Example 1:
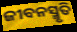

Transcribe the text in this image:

ଜୀବନସ୍ମୃତି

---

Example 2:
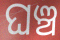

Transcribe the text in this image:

ଘଞ୍ଚ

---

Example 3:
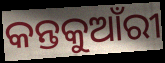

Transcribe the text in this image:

କନ୍ତକୁଆଁରୀ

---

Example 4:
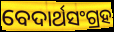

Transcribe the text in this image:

ବେଦାର୍ଥସଂଗ୍ରହ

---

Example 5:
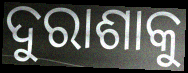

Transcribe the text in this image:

ଦୁରାଶାକୁ